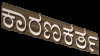
ಕಾರಣಕರ್ತ